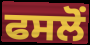
ਫਸਲੋਂ